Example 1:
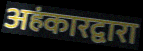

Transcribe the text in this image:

अहंकारद्वारा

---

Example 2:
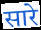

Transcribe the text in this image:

सारे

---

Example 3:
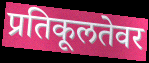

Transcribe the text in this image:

प्रतिकूलतेवर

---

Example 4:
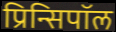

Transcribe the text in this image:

प्रिन्सिपॉल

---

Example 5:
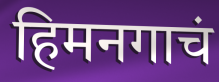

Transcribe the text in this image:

हिमनगाचं